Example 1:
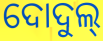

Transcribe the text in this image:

ଦୋଦୁଲ୍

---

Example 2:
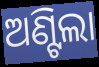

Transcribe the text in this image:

ଅଣ୍ଟିଲା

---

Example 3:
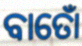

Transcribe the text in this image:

ବାତୋଁ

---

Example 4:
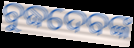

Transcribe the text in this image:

ବୁଦ୍ଧଦେବଙ୍କ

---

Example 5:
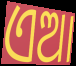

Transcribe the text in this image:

ଏଆ